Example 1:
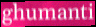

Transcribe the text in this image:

ghumanti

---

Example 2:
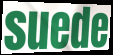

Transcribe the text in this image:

suede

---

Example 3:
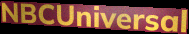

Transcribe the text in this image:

NBCUniversal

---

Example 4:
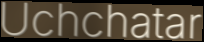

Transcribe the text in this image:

Uchchatar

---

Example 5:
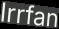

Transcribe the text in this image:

Irrfan